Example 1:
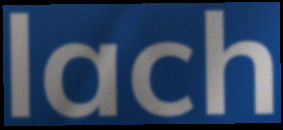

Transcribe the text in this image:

lach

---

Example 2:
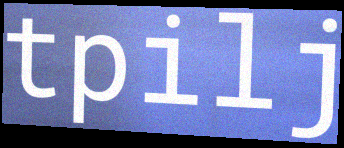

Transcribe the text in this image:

tpilj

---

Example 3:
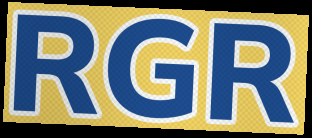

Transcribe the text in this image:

RGR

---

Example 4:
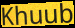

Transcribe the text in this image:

Khuub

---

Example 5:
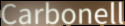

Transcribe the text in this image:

Carbonell